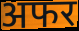
अफर